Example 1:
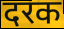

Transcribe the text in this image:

दरक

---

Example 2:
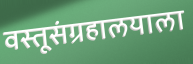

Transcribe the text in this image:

वस्तूसंग्रहालयाला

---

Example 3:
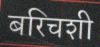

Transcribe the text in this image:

बरिचशी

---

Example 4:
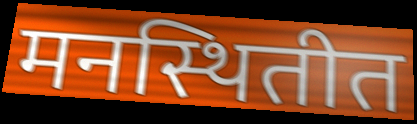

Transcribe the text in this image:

मनस्थितीत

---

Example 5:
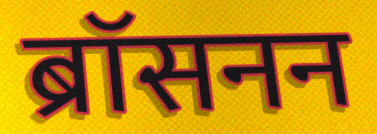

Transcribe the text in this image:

ब्रॉसनन